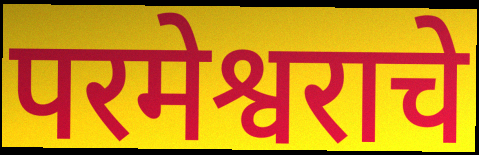
परमेश्वराचे